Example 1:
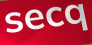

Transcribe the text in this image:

secq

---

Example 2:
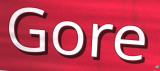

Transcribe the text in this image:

Gore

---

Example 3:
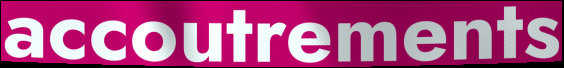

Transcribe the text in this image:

accoutrements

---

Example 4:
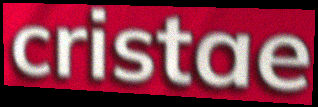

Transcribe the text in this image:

cristae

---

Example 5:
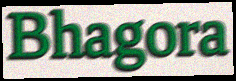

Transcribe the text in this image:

Bhagora